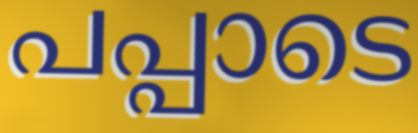
പപ്പാടെ